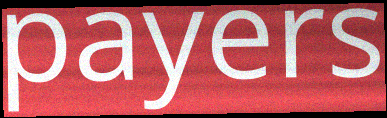
payers